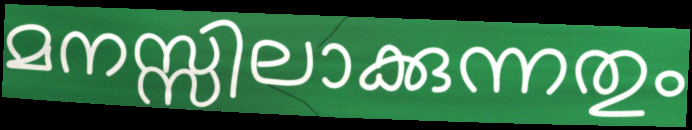
മനസ്സിലാക്കുന്നതും